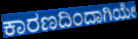
ಕಾರಣದಿಂದಾಗಿಯೇ